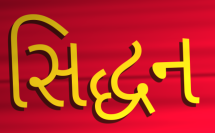
સિદ્ધન